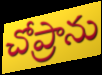
చోప్రాను